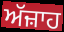
ਅੱਜ਼ਾਹ